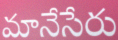
మానేసేరు